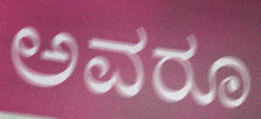
ಅವರೂ